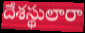
దేశస్థులారా